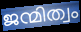
ജന്മിത്വം